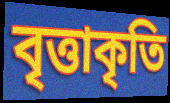
বৃত্তাকৃতি